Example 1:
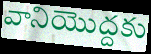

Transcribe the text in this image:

వానియొద్దకు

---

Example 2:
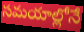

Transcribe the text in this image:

సమయాల్లోనే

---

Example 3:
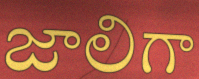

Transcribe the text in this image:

జాలిగా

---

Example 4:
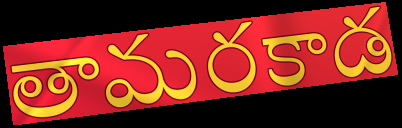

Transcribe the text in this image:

తామరకాడ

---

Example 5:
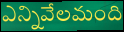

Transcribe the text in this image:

ఎన్నివేలమంది